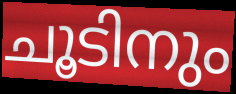
ചൂടിനും